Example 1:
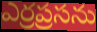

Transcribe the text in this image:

ఎర్రప్రసను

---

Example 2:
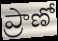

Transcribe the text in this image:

ప్రాణో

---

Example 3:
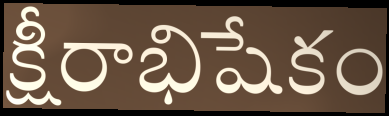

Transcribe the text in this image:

క్షీరాభిషేకం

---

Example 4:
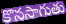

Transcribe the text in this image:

కొనసాగుతు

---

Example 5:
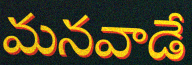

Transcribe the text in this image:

మనవాడే